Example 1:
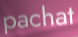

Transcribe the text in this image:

pachat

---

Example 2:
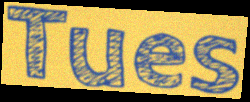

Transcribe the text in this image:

Tues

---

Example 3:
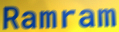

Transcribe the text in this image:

Ramram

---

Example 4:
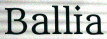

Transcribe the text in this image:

Ballia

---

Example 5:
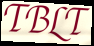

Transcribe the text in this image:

TBLT